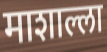
माशाल्ला